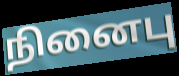
நினைபு